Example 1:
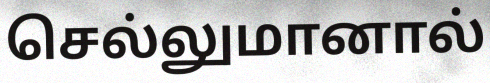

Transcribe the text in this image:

செல்லுமானால்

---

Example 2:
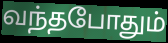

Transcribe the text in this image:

வந்தபோதும்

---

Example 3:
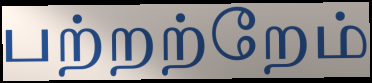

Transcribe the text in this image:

பற்றற்றேம்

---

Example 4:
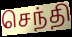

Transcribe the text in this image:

செந்தி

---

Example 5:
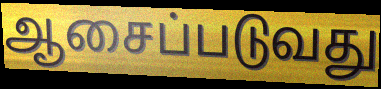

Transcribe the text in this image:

ஆசைப்படுவது